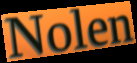
Nolen